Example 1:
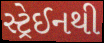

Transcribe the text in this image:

સ્ટ્રેઈનથી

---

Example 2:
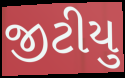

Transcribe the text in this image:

જીટીયુ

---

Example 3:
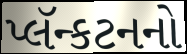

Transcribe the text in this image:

પ્લૅન્કટનનો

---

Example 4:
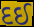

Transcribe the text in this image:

દઈ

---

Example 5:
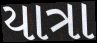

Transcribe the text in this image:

યાત્રા